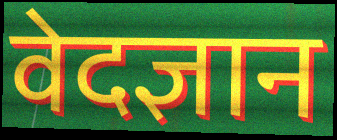
वेदज्ञान